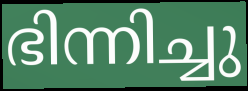
ഭിന്നിച്ചു